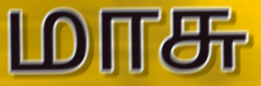
மாசு